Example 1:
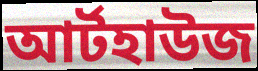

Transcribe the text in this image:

আর্টহাউজ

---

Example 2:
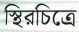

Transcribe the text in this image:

স্থিরচিত্রে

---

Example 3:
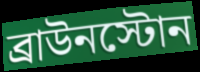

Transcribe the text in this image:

ব্রাউনস্টোন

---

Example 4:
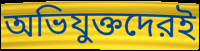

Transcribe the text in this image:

অভিযুক্তদেরই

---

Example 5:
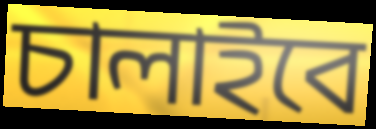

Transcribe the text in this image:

চালাইবে